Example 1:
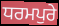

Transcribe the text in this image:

ਧਰਮਪੁਰੇ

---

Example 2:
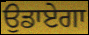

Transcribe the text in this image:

ਉਡਾਏਗਾ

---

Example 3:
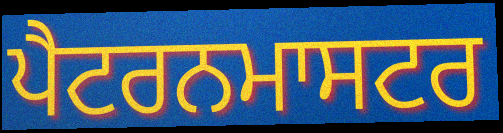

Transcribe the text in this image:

ਪੈਟਰਨਮਾਸਟਰ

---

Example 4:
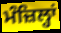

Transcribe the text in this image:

ਮੰਜ਼ਿਲ੍ਹਾਂ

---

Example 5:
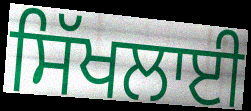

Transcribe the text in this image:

ਸਿੱਖਲਾਈ